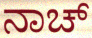
ನಾಚ್